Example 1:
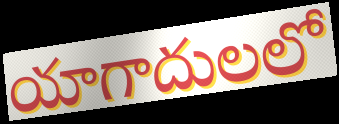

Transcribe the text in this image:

యాగాదులలో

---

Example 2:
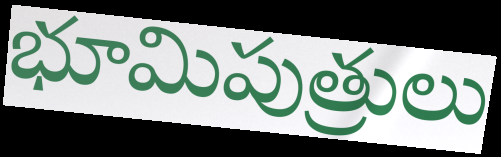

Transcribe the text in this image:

భూమిపుత్రులు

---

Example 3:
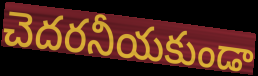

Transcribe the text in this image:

చెదరనీయకుండా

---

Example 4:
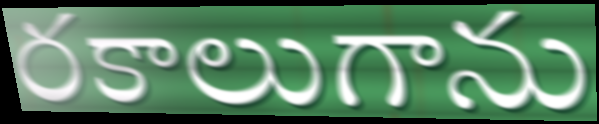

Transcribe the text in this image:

రకాలుగాను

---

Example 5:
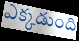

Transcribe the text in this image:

ఎక్కడుంది